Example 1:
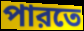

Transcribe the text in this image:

পারতে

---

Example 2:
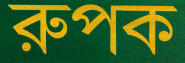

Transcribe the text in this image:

রুপক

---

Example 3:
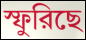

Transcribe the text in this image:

স্ফুরিছে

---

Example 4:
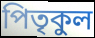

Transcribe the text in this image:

পিতৃকুল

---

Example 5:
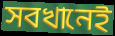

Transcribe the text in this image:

সবখানেই